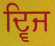
ਦ੍ਵਿਜ